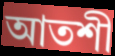
আতশী